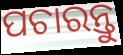
ପଚାରନ୍ତୁ